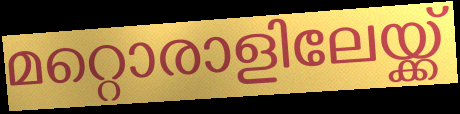
മറ്റൊരാളിലേയ്ക്ക്